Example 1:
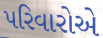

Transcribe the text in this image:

પરિવારોએ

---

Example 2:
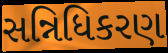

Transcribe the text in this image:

સન્નિધિકરણ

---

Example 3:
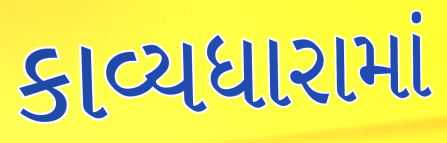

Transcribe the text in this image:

કાવ્યધારામાં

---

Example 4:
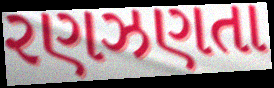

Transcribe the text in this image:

રણઝણતા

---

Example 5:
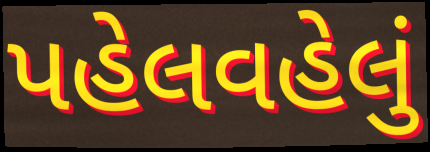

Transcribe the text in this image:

પહેલવહેલું